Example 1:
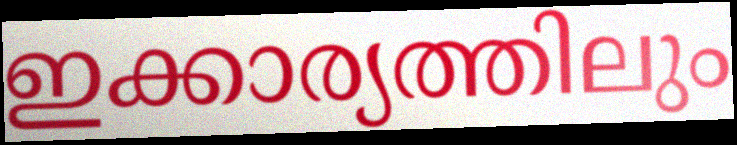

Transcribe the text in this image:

ഇക്കാര്യത്തിലും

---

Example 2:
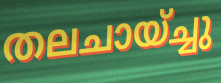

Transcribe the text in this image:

തലചായ്ച്ചു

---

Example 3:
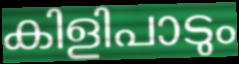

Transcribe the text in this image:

കിളിപാടും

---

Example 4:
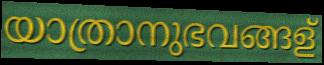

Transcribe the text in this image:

യാത്രാനുഭവങ്ങള്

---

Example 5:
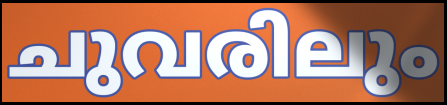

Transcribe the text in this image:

ചുവരിലും